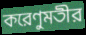
করেণুমতীর